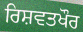
ਰਿਸ਼ਵਤਖੌਰ